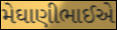
મેઘાણીભાઈએ